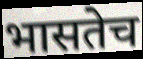
भासतेच